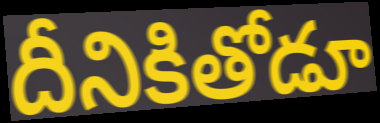
దీనికితోడూ